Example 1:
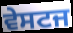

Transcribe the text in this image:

ਵੇਸਟਜ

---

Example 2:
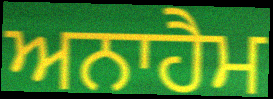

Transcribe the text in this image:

ਅਨਾਹੈਮ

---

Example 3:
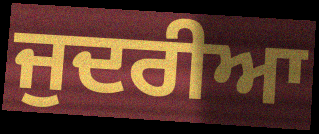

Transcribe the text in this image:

ਜੁਦਰੀਆ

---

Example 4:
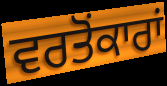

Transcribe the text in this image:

ਵਰਤੋਂਕਾਰਾਂ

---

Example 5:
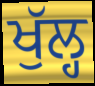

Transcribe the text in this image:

ਖੁੱਲ੍ਹ